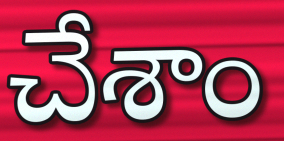
చేశాం